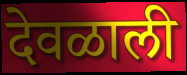
देवळाली